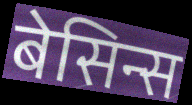
बेसिन्स